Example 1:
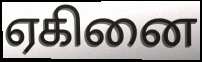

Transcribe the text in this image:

ஏகினை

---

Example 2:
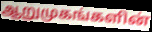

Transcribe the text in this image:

ஆறுமுகங்களின்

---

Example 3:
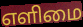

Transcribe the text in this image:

எளிமை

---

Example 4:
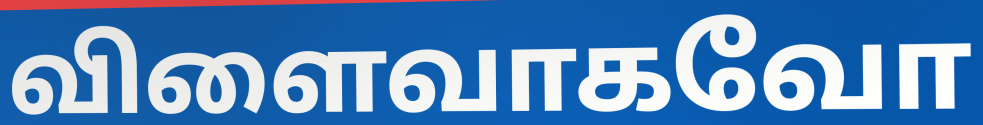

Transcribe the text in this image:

விளைவாகவோ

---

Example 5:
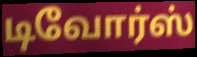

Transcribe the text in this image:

டிவோர்ஸ்